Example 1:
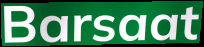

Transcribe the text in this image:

Barsaat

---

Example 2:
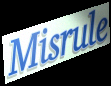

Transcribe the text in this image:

Misrule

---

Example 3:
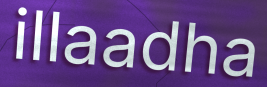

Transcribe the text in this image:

illaadha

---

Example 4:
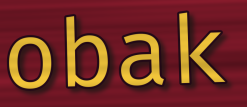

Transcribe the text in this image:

obak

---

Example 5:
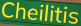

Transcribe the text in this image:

Cheilitis